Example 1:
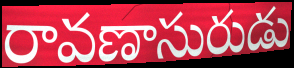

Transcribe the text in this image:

రావణాసురుడు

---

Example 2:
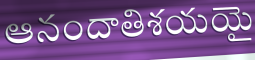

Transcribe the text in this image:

ఆనందాతిశయయై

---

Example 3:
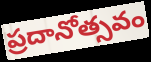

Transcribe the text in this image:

ప్రదానోత్సవం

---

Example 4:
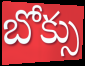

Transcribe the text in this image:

బోక్సు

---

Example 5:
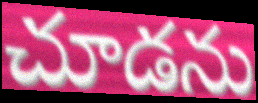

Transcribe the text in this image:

చూడను